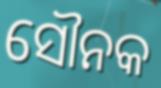
ସୌନକ